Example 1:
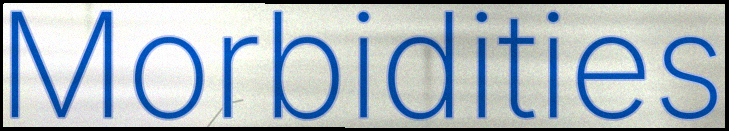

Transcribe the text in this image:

Morbidities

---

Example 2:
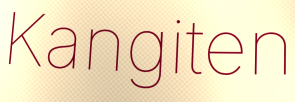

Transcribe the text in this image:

Kangiten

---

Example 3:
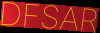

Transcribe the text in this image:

DFSAR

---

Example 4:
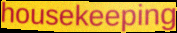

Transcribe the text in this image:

housekeeping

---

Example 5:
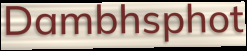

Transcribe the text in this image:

Dambhsphot